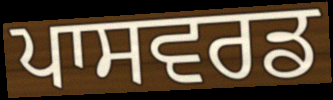
ਪਾਸਵਰਡ